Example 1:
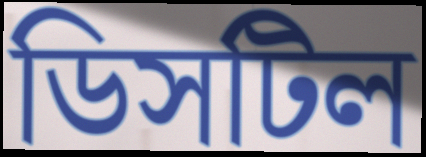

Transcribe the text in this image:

ডিসটিল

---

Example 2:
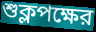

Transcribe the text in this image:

শুক্লপক্ষের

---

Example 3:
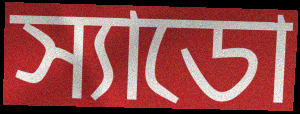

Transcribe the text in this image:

স্যাডো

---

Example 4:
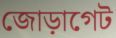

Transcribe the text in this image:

জোড়াগেট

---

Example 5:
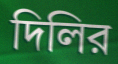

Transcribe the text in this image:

দিলির